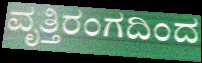
ವೃತ್ತಿರಂಗದಿಂದ